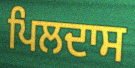
ਪਿਲਦਾਸ